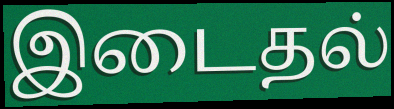
இடைதல்